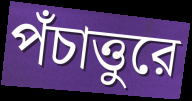
পঁচাত্তুরে